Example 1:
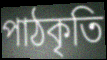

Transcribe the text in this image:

পাঠকৃতি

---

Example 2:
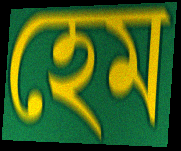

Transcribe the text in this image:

হেম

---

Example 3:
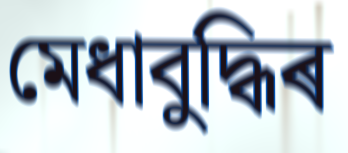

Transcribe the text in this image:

মেধাবুদ্ধিৰ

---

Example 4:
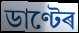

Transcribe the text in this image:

ডাণ্টেৰ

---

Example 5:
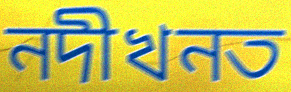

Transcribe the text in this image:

নদীখনত